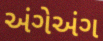
અંગેઅંગ